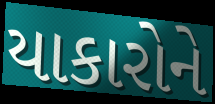
યાકારોને